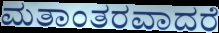
ಮತಾಂತರವಾದರೆ